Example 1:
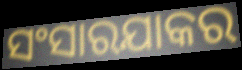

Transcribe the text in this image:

ସଂସାରଯାକର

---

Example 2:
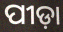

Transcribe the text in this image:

ପୀଡ଼ା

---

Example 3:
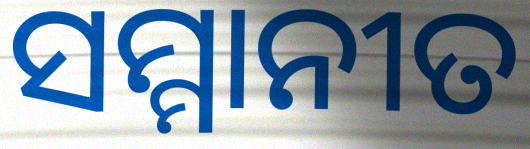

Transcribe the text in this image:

ସମ୍ମାନୀତ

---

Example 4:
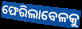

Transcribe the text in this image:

ଫେରିଲାବେଳକୁ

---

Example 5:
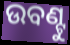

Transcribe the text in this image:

ଉବଣ୍ଟୁ